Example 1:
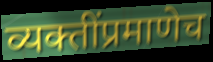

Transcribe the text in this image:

व्यक्तींप्रमाणेच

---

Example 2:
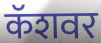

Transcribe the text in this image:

कॅशवर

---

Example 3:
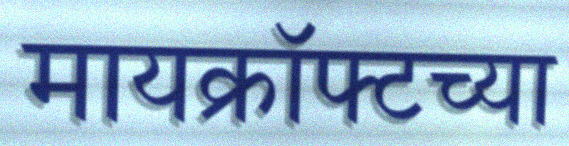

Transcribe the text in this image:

मायक्रॉफ्टच्या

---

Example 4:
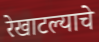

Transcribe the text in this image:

रेखाटल्याचे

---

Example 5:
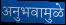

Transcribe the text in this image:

अनुभवामुळे